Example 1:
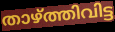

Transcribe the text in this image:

താഴ്ത്തിവിട്ട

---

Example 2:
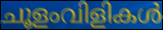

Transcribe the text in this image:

ചൂളംവിളികൾ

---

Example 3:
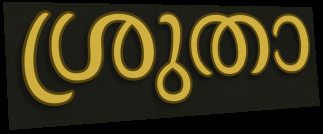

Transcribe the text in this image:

ശ്രുതാ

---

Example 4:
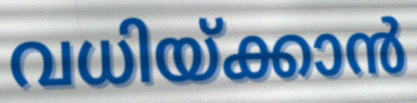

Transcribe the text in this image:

വധിയ്ക്കാൻ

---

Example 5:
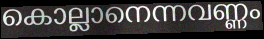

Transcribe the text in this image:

കൊല്ലാനെന്നവണ്ണം